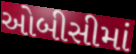
ઓબીસીમાં